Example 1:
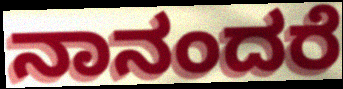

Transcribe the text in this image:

ನಾನಂದರೆ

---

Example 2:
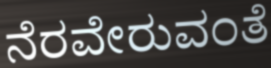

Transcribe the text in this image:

ನೆರವೇರುವಂತೆ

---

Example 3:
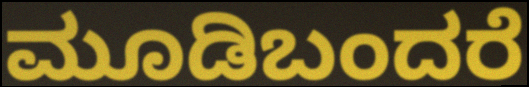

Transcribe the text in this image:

ಮೂಡಿಬಂದರೆ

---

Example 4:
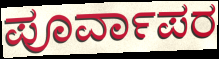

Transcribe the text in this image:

ಪೂರ್ವಾಪರ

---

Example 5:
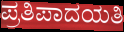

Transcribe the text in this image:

ಪ್ರತಿಪಾದಯತಿ